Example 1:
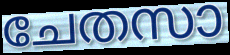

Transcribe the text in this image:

ചേതസാ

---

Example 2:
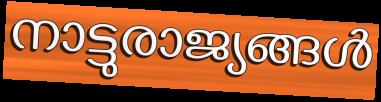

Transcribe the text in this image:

നാട്ടുരാജ്യങ്ങൾ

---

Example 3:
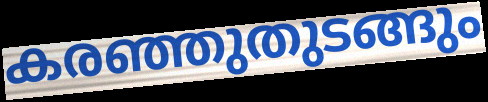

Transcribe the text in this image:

കരഞ്ഞുതുടങ്ങും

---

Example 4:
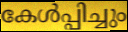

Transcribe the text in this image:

കേൾപ്പിച്ചും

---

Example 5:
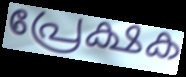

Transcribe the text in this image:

പ്രേക്ഷക